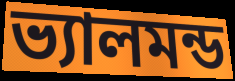
ভ্যালমন্ড